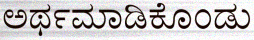
ಅರ್ಥಮಾಡಿಕೊಂಡು